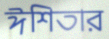
ঈশিতার